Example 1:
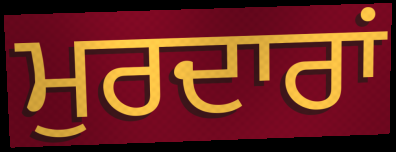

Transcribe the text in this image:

ਮੁਰਦਾਰਾਂ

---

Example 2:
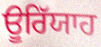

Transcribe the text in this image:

ਊਰਿੱਯਾਹ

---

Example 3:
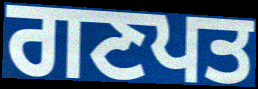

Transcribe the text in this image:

ਗਣਪਤ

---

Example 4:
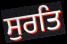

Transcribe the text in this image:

ਸੁਰਤਿ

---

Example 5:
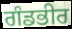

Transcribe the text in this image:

ਗੰਡਭੀਰ